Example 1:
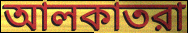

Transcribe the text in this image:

আলকাতরা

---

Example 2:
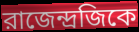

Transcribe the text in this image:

রাজেন্দ্রজিকে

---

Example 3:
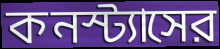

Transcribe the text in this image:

কনস্ট্যাসের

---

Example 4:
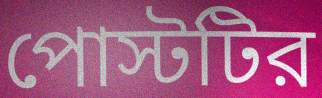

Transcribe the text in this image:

পোস্টটির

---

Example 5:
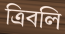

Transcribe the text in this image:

ত্রিবলি